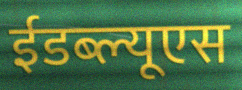
ईडब्ल्यूएस